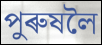
পুৰুষলৈ